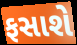
ફસાશે